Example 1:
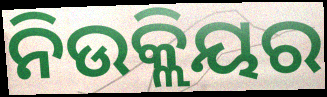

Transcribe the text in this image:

ନିଉକ୍ଲିୟର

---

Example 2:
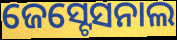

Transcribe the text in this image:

ଜେସ୍ଟେସନାଲ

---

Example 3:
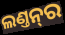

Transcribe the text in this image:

ଲଣ୍ତନ୍‌ର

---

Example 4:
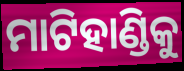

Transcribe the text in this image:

ମାଟିହାଣ୍ଡିକୁ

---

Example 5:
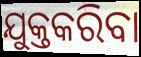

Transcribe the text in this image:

ଯୁକ୍ତକରିବା